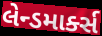
લેન્ડમાર્ક્સ